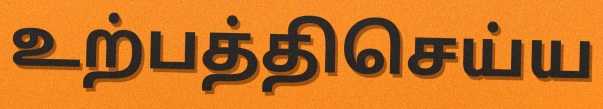
உற்பத்திசெய்ய